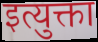
इत्युक्ता